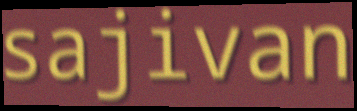
sajivan